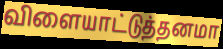
விளையாட்டுத்தனமா